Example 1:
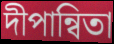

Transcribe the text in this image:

দীপান্বিতা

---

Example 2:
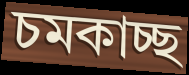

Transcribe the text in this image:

চমকাচ্ছ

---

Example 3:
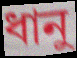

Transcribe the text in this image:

ধানু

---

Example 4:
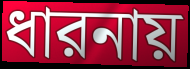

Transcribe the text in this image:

ধারনায়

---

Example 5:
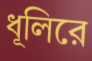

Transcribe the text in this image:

ধূলিরে